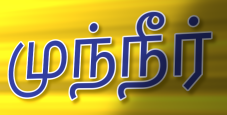
முந்நீர்